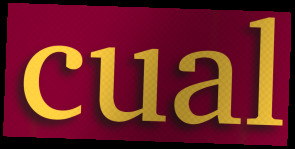
cual